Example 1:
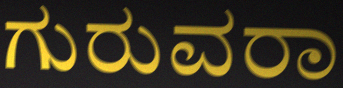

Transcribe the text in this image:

ಗುರುವರಾ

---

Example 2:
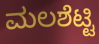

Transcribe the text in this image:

ಮಲಶೆಟ್ಟಿ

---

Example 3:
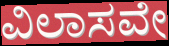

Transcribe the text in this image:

ವಿಲಾಸವೇ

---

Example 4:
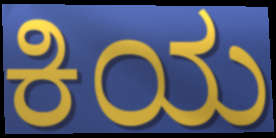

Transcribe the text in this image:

ಕಿಯ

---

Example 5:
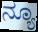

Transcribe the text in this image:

ನ್ಯೂ